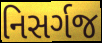
નિસર્ગજ